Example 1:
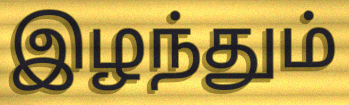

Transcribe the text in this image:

இழந்தும்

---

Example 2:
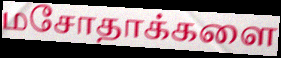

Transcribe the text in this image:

மசோதாக்களை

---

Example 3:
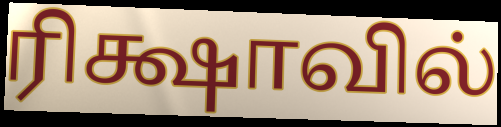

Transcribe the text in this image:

ரிக்ஷாவில்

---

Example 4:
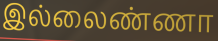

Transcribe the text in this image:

இல்லைண்ணா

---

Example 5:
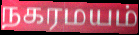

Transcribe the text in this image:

நகரமயம்